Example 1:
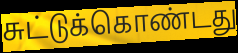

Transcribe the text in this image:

சுட்டுக்கொண்டது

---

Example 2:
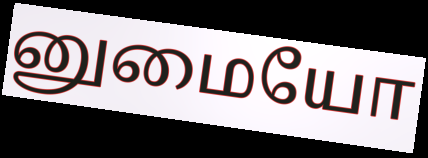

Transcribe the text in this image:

னுமையோ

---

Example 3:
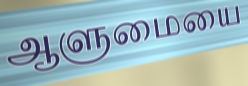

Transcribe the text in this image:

ஆளுமையை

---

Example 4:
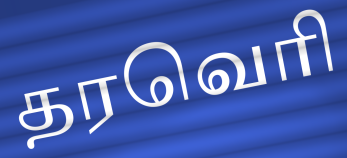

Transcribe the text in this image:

தரவெரி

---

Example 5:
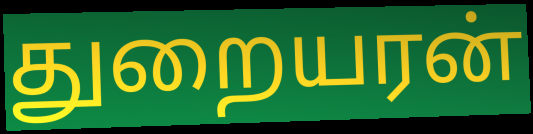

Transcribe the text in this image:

துறையரன்